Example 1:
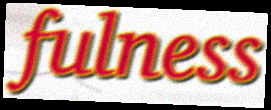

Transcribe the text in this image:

fulness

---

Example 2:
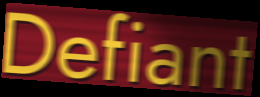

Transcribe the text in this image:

Defiant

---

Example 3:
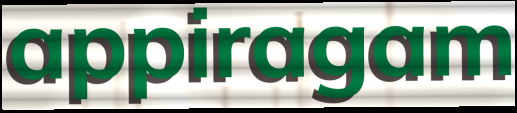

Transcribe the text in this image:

appiragam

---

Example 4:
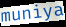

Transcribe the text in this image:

muniya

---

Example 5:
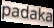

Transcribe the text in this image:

padaka